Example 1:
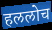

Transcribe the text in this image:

हललोच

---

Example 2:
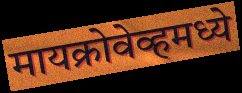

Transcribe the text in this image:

मायक्रोवेव्हमध्ये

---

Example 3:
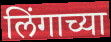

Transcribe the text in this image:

लिंगाच्या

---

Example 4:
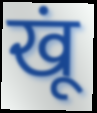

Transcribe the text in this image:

खूं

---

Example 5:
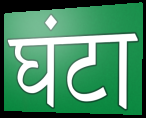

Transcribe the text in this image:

घंटा